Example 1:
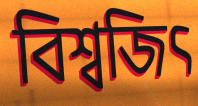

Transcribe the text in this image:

বিশ্বজিৎ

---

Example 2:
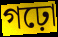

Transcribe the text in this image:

গঢ়ো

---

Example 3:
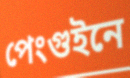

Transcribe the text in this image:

পেংগুইনে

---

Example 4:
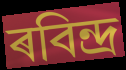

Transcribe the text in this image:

ৰবিন্দ্ৰ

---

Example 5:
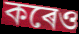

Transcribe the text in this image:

কৰেও